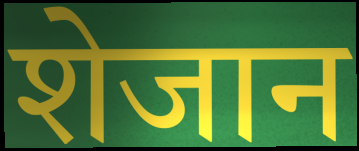
शेजान